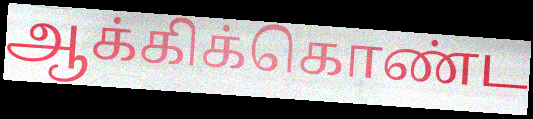
ஆக்கிக்கொண்ட